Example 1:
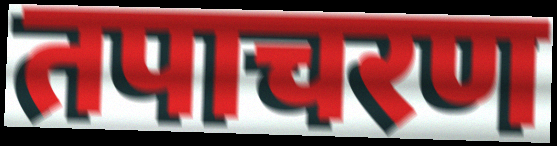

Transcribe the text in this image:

तपाचरण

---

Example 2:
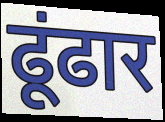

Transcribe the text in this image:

ढूंढार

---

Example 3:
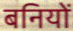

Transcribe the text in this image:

बनियों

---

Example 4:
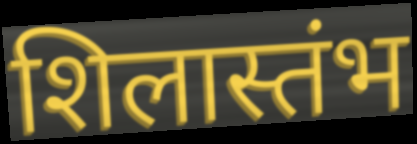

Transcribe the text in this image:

शिलास्तंभ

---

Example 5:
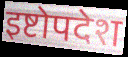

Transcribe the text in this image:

इष्टोपदेश